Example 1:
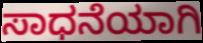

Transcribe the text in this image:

ಸಾಧನೆಯಾಗಿ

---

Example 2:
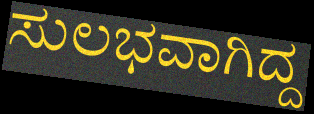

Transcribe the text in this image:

ಸುಲಭವಾಗಿದ್ದ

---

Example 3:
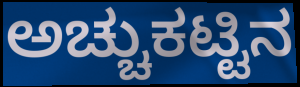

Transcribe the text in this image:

ಅಚ್ಚುಕಟ್ಟಿನ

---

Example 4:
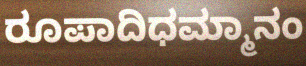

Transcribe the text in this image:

ರೂಪಾದಿಧಮ್ಮಾನಂ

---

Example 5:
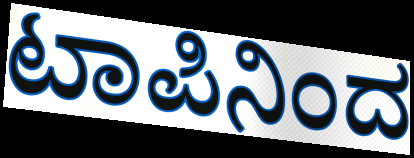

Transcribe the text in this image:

ಟಾಪಿನಿಂದ